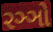
રઞ્ઞો